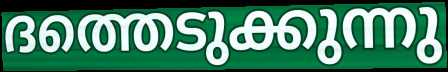
ദത്തെടുക്കുന്നു